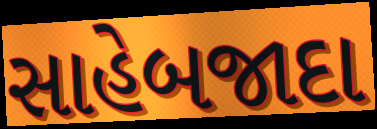
સાહેબજાદા